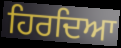
ਹਿਰਦਿਆ